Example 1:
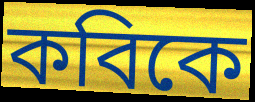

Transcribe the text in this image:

কবিকে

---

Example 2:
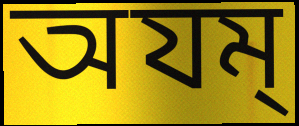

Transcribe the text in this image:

অযম্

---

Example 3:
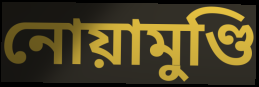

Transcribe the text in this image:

নোয়ামুণ্ডি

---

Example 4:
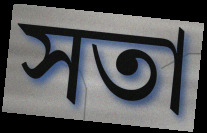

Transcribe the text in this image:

সতা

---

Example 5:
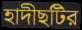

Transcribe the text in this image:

হাদীছটির